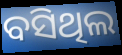
ବସିଥିଲ